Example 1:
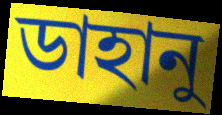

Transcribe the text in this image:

ডাহানু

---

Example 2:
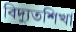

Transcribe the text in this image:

বিদ্যুতশিখা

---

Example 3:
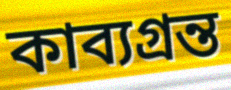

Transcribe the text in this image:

কাব্যগ্রন্ত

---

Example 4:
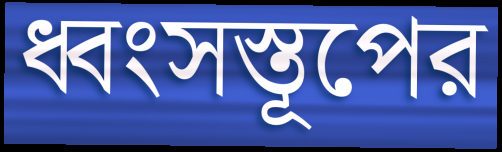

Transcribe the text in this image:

ধ্বংসস্তূপের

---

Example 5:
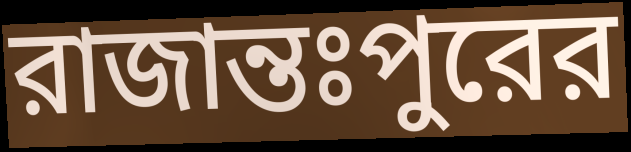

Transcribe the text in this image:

রাজান্তঃপুরের